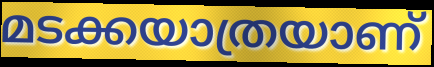
മടക്കയാത്രയാണ്